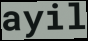
ayil